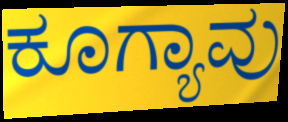
ಕೂಗ್ಯಾವು